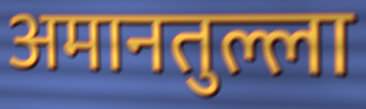
अमानतुल्ला